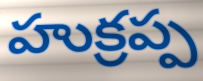
హుక్రప్ప